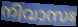
നിവാസഃ